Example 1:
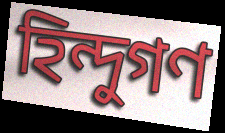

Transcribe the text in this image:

হিন্দুগণ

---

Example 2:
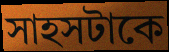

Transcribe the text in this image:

সাহসটাকে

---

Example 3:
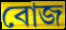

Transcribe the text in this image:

বোজ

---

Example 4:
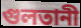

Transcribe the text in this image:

গুলতানী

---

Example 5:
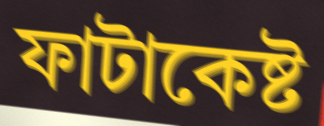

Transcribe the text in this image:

ফাটাকেষ্ট